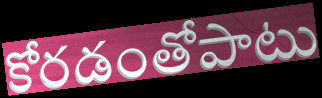
కోరడంతోపాటు